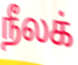
நீலக்